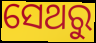
ସେଥରୁ